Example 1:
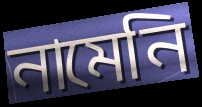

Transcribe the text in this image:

নামেনি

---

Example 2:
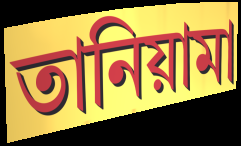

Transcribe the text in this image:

তানিয়ামা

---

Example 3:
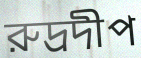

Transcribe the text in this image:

রুদ্রদীপ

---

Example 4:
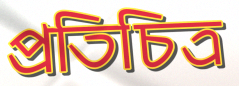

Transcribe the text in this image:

প্রতিচিত্র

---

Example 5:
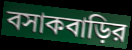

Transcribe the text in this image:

বসাকবাড়ির